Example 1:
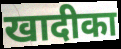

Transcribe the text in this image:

खादीका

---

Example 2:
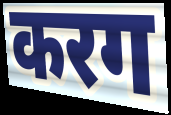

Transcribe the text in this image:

करग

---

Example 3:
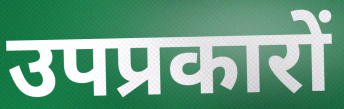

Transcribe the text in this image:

उपप्रकारों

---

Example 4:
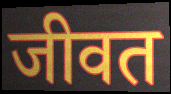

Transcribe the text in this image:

जीवत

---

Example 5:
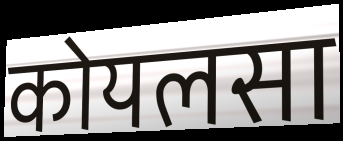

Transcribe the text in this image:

कोयलसा